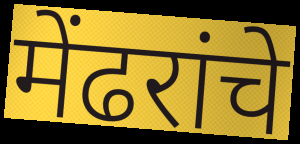
मेंढरांचे